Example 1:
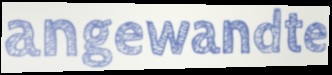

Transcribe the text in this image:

angewandte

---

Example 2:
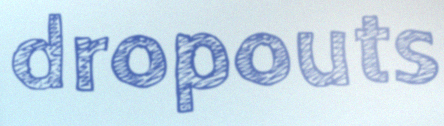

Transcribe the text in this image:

dropouts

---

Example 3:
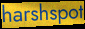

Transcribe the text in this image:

harshspot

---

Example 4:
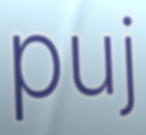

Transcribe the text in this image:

puj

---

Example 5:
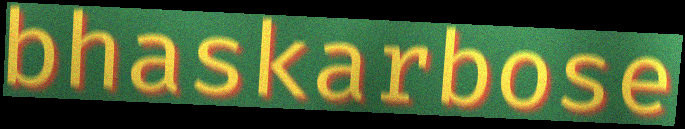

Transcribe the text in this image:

bhaskarbose